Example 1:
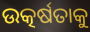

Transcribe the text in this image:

ଉତ୍କର୍ଷତାକୁ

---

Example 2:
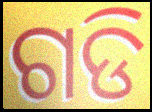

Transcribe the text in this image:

ଗଡି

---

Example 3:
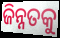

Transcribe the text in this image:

ଜିନ୍ନତକୁ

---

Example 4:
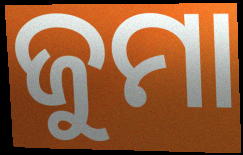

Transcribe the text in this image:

ଜୁମା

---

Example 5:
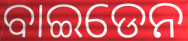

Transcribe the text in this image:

ବାଇଡେନ